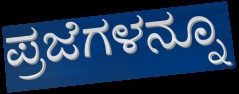
ಪ್ರಜೆಗಳನ್ನೂ